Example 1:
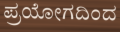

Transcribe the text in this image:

ಪ್ರಯೋಗದಿಂದ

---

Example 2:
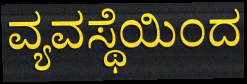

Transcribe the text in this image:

ವ್ಯವಸ್ಥೆಯಿಂದ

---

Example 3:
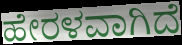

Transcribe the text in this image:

ಹೇರಳವಾಗಿದೆ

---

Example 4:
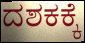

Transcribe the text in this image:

ದಶಕಕ್ಕೆ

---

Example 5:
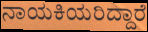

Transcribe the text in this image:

ನಾಯಕಿಯರಿದ್ದಾರೆ